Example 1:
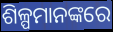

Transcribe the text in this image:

ଶିଳ୍ପମାନଙ୍କରେ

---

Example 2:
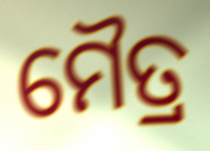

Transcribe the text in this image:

ମୈତ୍ର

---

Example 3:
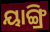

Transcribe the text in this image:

ୟାଙ୍ଗ୍ରି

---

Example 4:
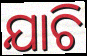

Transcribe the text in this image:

ଯାଚି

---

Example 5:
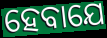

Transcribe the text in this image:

ହେବାଯେ